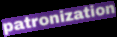
patronization